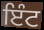
ਇੰਟ